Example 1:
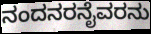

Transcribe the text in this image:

ನಂದನರನೈವರನು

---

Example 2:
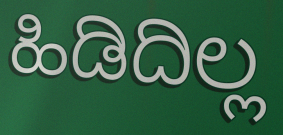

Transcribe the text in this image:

ಹಿಡಿದಿಲ್ಲ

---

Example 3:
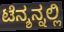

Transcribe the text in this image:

ಟೆನ್ಶನ್ನಲ್ಲಿ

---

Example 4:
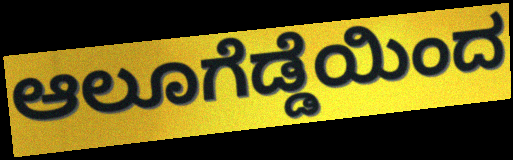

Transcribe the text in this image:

ಆಲೂಗೆಡ್ಡೆಯಿಂದ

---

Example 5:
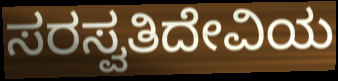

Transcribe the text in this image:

ಸರಸ್ವತಿದೇವಿಯ